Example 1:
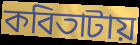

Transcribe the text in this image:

কবিতাটায়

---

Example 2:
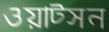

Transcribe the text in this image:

ওয়াট্সন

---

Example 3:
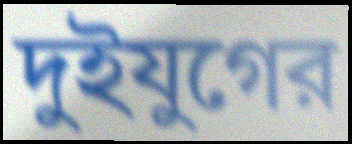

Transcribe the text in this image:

দুইযুগের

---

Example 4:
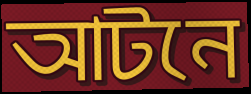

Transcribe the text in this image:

আটনে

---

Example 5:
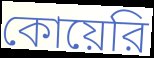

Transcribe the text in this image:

কোয়েরি